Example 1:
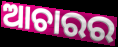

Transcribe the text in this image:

ଆଚାରର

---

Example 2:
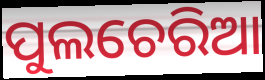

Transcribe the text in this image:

ପୁଲଚେରିଆ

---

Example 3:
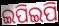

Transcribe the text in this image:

ଇପିଇପି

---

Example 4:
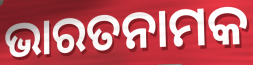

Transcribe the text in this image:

ଭାରତନାମକ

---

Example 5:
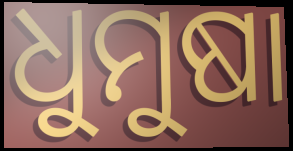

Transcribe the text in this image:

ଧୁମୁଷା